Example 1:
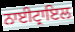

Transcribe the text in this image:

ਨਾਈਟ੍ਰਾਇਲ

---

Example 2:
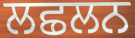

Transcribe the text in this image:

ਲਛਲਨ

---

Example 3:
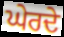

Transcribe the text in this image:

ਘੇਰਦੇ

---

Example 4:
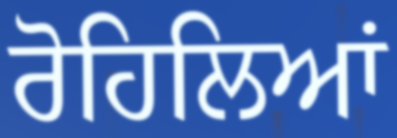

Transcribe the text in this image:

ਰੋਹਿਲਿਆਂ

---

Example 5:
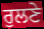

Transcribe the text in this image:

ਰੁਲਣੇ